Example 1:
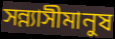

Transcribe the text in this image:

সন্ন্যাসীমানুষ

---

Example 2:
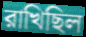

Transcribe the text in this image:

রাখিছিল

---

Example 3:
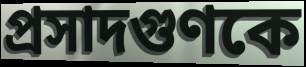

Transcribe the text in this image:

প্রসাদগুণকে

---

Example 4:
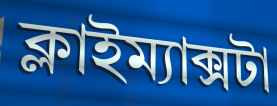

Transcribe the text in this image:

ক্লাইম্যাক্সটা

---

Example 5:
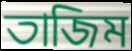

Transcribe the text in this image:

তাজিম